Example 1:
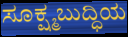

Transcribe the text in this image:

ಸೂಕ್ಷ್ಮಬುದ್ಧಿಯ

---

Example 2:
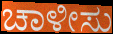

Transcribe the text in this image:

ಚಾಳೀಸು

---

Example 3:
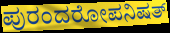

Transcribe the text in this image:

ಪುರಂದರೋಪನಿಷತ್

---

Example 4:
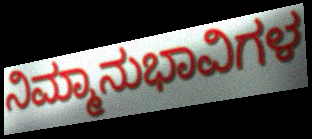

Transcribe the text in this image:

ನಿಮ್ಮಾನುಭಾವಿಗಳ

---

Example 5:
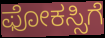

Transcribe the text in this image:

ಫೋಕಸ್ಸಿಗೆ